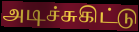
அடிச்சுகிட்டு